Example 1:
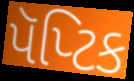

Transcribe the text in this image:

પૅપ્ટિક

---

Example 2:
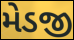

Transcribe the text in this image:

મેડજી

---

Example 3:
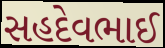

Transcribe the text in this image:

સહદેવભાઈ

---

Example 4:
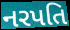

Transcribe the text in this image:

નરપતિ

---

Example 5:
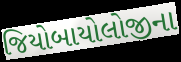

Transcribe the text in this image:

જિયોબાયોલોજીના